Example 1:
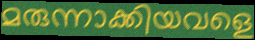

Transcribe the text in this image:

മരുന്നാക്കിയവളെ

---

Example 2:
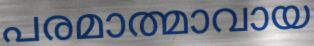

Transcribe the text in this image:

പരമാത്മാവായ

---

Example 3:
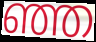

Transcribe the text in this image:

ഞ്ഞ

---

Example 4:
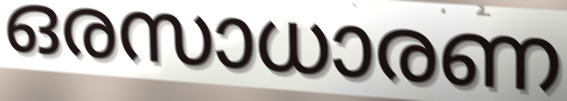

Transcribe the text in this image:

ഒരസാധാരണ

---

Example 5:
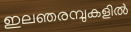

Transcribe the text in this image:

ഇലഞരമ്പുകളിൽ